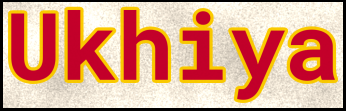
Ukhiya